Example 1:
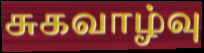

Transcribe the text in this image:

சுகவாழ்வு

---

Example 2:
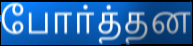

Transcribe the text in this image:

போர்த்தன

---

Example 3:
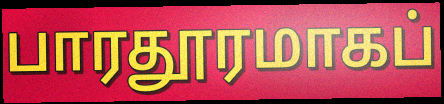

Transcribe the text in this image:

பாரதூரமாகப்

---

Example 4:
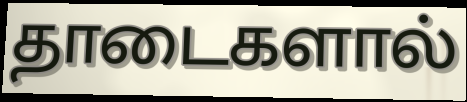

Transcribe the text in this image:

தாடைகளால்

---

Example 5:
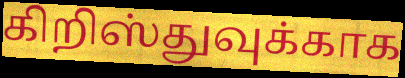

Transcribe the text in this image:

கிறிஸ்துவுக்காக